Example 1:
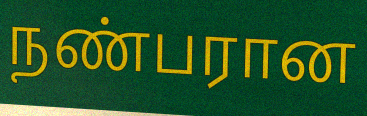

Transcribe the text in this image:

நண்பரான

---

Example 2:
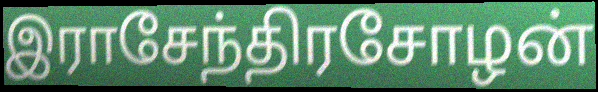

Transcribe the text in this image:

இராசேந்திரசோழன்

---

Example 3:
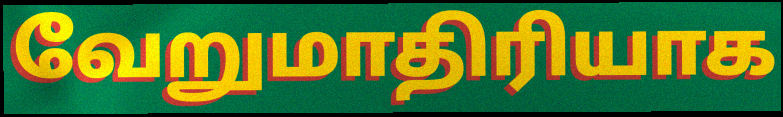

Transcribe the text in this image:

வேறுமாதிரியாக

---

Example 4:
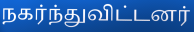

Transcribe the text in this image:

நகர்ந்துவிட்டனர்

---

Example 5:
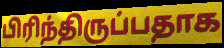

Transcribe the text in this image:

பிரிந்திருப்பதாக